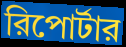
রিপোর্টার